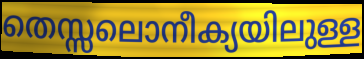
തെസ്സലൊനീക്യയിലുള്ള